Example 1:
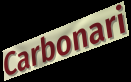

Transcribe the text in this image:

Carbonari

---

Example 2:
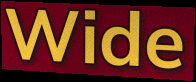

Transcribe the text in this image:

Wide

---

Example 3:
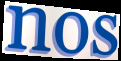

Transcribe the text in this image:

nos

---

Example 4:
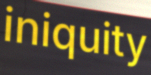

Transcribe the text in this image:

iniquity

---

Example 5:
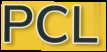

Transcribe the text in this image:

PCL